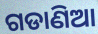
ଗଡାଣିଆ